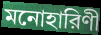
মনোহারিণী